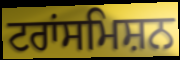
ਟਰਾਂਸਮਿਸ਼ਨ